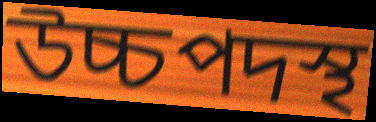
উচ্চপদস্থ